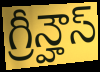
గ్రీన్హౌస్